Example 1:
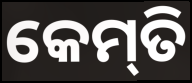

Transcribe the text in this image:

କେମ୍‍ତି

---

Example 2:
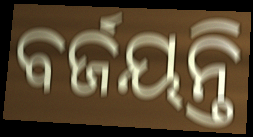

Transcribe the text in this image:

ବର୍ଜୟନ୍ତି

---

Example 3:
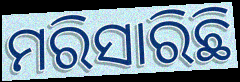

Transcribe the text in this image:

ମରିସାରିଛି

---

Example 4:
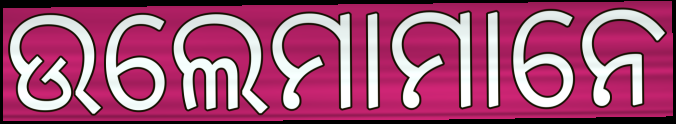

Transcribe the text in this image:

ଉଲେମାମାନେ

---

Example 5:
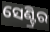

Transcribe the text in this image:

ସେଣ୍ଟ୍ରିର